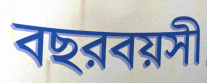
বছরবয়সী